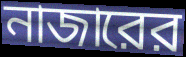
নাজারের